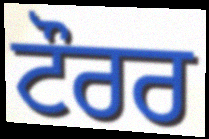
ਟੌਰਰ